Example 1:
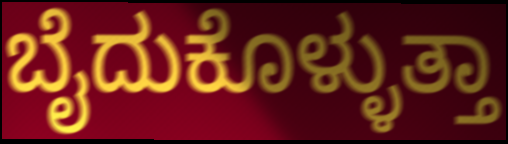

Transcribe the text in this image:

ಬೈದುಕೊಳ್ಳುತ್ತಾ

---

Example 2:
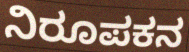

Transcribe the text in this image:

ನಿರೂಪಕನ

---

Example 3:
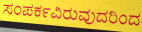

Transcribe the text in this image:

ಸಂಪರ್ಕವಿರುವುದರಿಂದ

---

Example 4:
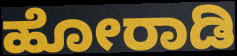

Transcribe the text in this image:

ಹೋರಾಡಿ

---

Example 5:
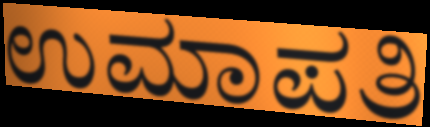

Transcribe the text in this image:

ಉಮಾಪತಿ